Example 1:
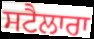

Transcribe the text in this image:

ਸਟੈਲਾਰਾ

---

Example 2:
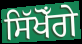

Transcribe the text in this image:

ਸਿੱਖੋਁਗੇ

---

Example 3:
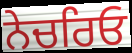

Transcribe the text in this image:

ਨੇਚਰਿਓ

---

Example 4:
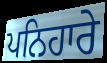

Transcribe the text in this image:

ਪਨਿਹਾਰੇ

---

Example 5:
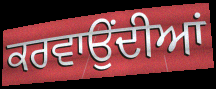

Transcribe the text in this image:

ਕਰਵਾਉੁਂਦੀਆਂ